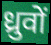
ध्रुवों